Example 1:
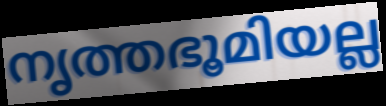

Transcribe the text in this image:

നൃത്തഭൂമിയല്ല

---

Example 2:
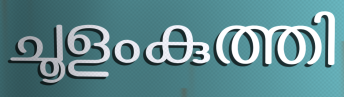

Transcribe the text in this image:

ചൂളംകുത്തി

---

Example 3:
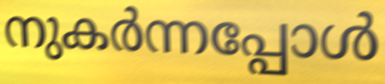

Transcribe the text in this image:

നുകർന്നപ്പോൾ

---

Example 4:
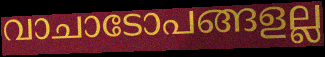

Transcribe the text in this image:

വാചാടോപങ്ങളല്ല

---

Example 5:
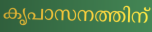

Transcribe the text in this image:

കൃപാസനത്തിന്